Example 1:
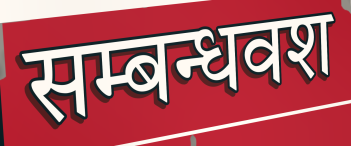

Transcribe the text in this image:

सम्बन्धवश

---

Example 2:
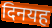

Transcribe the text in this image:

दिनयह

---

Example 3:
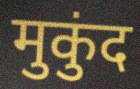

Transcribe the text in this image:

मुकुंद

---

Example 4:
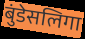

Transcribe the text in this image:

बुंडेसलिगा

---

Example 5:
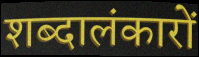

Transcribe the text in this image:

शब्दालंकारों